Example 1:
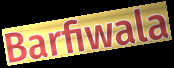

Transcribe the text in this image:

Barfiwala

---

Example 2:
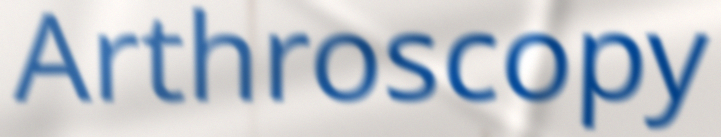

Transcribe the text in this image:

Arthroscopy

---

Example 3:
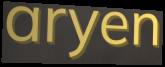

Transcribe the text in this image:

aryen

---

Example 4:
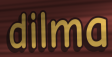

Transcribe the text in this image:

dilma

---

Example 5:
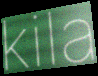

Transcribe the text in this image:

kila